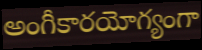
అంగీకారయోగ్యంగా